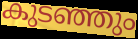
കുടഞ്ഞും